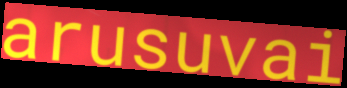
arusuvai